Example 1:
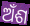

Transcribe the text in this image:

ଅଁଶ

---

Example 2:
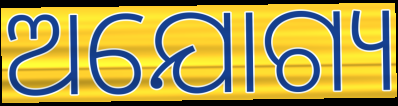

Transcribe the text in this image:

ଅଯୋଗ୍ୟ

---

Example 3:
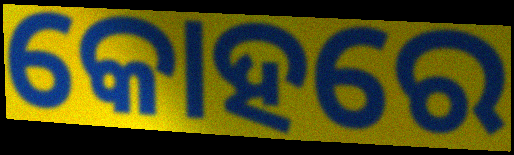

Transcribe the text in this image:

କୋହରେ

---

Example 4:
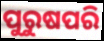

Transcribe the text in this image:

ପୁରୁଷପରି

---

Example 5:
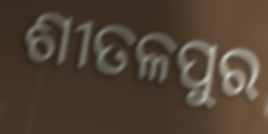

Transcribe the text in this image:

ଶୀତଳପୁର